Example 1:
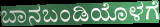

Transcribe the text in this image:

ಬಾನಬಂಡಿಯೊಳಗೆ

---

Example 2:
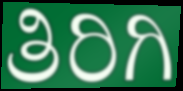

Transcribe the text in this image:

ತಿರಿಗಿ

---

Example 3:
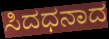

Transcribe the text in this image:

ಸಿದಧನಾದ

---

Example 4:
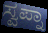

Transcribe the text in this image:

ಸ್ವಪ್ನಾ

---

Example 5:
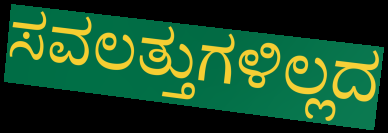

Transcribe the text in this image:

ಸವಲತ್ತುಗಳಿಲ್ಲದ